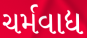
ચર્મવાદ્ય